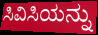
ಸಿವಿಸಿಯನ್ನು